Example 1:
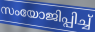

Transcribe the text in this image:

സംയോജിപ്പിച്ച്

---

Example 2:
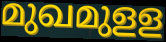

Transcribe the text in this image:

മുഖമുളള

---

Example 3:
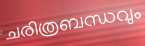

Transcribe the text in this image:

ചരിത്രബന്ധവും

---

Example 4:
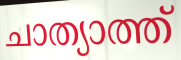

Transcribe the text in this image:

ചാത്യാത്ത്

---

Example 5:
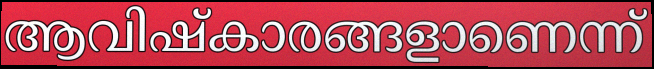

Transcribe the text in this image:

ആവിഷ്കാരങ്ങളാണെന്ന്